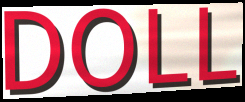
DOLL